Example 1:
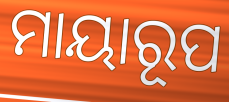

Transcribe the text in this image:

ମାୟାରୂପ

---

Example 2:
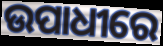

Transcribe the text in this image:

ଉପାଧୀରେ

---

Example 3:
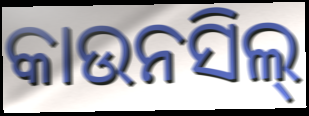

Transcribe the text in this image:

କାଉନସିଲ୍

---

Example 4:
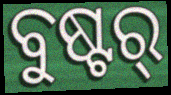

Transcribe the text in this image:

ବୁଷ୍ଟର୍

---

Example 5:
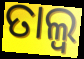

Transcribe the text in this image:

ତାଲ୍ୱ